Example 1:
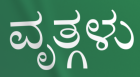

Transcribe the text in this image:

ವೃತ್ಗಳು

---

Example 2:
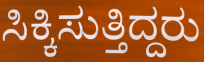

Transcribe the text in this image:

ಸಿಕ್ಕಿಸುತ್ತಿದ್ದರು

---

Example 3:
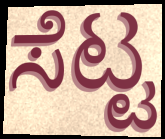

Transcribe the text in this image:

ಸೆಟ್ಟ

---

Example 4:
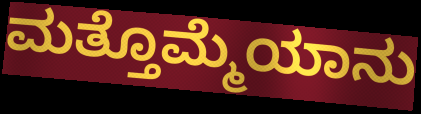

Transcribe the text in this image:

ಮತ್ತೊಮ್ಮೆಯಾನು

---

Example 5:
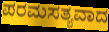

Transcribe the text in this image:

ಪರಮಸತ್ಯವಾದ